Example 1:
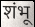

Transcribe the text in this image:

शंभू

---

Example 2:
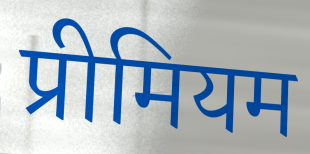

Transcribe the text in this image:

प्रीमियम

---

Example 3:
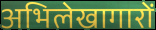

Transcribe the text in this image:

अभिलेखागारों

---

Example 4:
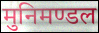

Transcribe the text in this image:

मुनिमण्डल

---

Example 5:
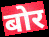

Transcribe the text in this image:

बोर